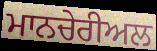
ਮਾਨਚੇਰੀਅਲ